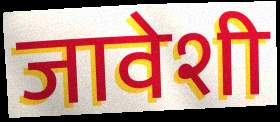
जावेशी